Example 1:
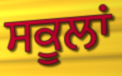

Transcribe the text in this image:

ਸਕੂਲਾਂ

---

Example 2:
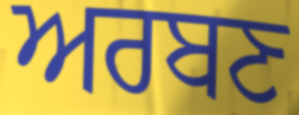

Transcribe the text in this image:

ਅਰਬਣ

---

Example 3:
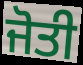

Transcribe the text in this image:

ਜੋਤੀ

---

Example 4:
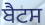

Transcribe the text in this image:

ਬੈਟਸ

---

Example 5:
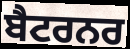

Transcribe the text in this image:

ਬੈਟਰਨਰ